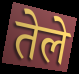
तेले